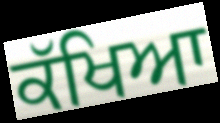
ਕੱਖਿਆ